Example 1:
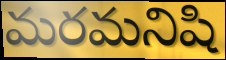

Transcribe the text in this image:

మరమనిషి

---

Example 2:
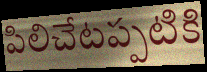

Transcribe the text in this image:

పిలిచేటప్పటికి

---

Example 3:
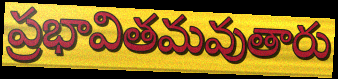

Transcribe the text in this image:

ప్రభావితమవుతారు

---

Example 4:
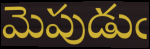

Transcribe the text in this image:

మెపుడుఁ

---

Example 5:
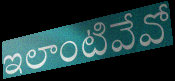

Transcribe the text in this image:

ఇలాంటివేవో